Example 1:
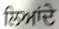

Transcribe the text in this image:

ਲਿਆਂਦੇ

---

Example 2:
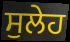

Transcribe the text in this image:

ਸੁਲੇਹ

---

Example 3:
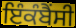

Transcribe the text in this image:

ਇੰਕੰਬੈਂਸੀ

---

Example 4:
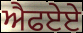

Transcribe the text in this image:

ਐਫਏਏ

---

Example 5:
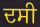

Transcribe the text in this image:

ਦਸੀ